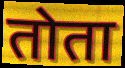
तोता